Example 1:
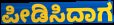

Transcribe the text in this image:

ಪೀಡಿಸಿದಾಗ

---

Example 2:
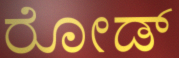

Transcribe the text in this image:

ರೋಡ್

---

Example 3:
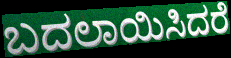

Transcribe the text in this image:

ಬದಲಾಯಿಸಿದರೆ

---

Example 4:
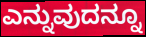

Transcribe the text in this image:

ಎನ್ನುವುದನ್ನೂ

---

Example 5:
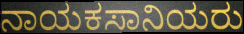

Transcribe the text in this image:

ನಾಯಕಸಾನಿಯರು